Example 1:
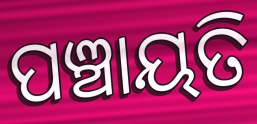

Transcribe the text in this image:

ପଞ୍ଚାୟତି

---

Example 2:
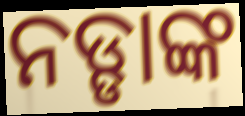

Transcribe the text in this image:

ନଡ୍ଡାଙ୍କ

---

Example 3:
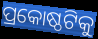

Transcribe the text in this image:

ପ୍ରକୋଷ୍ଠଟିକୁ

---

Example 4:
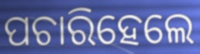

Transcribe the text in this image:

ପଚାରିହେଲେ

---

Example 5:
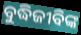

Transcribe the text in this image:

ବୁଦ୍ଧିଜୀବିଙ୍କ